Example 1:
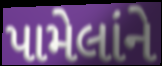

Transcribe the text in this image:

પામેલાંને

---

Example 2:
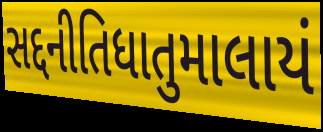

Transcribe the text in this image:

સદ્દનીતિધાતુમાલાયં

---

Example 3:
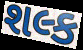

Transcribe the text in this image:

શલ્ક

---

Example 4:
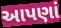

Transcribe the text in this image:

આપણાં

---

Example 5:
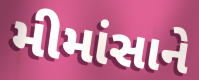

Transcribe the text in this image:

મીમાંસાને